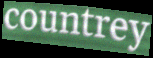
countrey